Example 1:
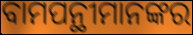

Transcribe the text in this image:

ବାମପନ୍ଥୀମାନଙ୍କର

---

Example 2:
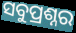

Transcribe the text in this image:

ସବୁପ୍ରଶ୍ନର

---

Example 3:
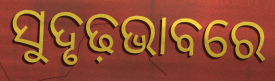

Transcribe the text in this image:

ସୁଦୃଢ଼ଭାବରେ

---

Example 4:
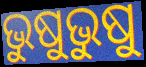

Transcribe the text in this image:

ଭୁଷୁଭୁଷୁ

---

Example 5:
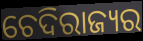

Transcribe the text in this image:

ଚେଦିରାଜ୍ୟର